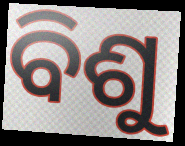
ବିଶୁ